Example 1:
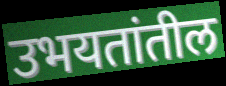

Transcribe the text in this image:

उभयतांतील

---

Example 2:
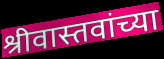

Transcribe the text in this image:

श्रीवास्तवांच्या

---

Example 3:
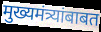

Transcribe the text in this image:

मुख्यमंत्र्यांबाबत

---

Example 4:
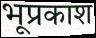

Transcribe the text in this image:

भूप्रकाश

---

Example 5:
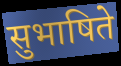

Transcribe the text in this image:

सुभाषिते